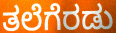
ತಲೆಗೆರಡು